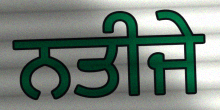
ਨਤੀਜੇ